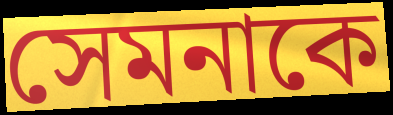
সেমনাকে